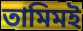
তামিমই